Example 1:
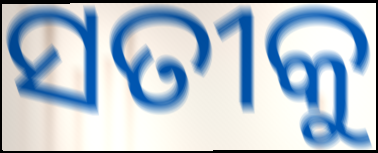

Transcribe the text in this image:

ସତୀକୁ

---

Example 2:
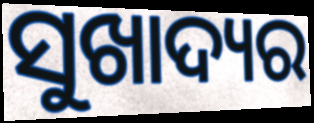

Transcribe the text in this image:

ସୁଖାଦ୍ୟର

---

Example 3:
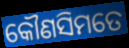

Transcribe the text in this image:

କୌଣସିମତେ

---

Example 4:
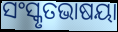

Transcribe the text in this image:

ସଂସ୍କୃତଭାଷୟା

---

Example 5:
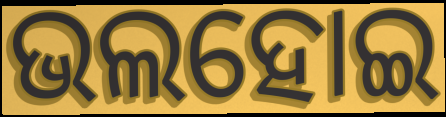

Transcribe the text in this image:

ଭଲହୋଇ